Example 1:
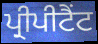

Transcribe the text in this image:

ਪ੍ਰੀਪੀਟੈਂਟ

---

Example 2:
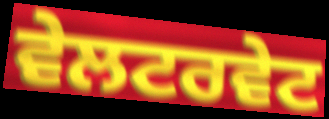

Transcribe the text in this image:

ਵੇਲਟਰਵੇਟ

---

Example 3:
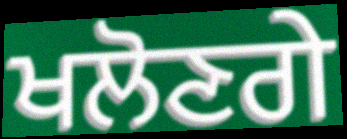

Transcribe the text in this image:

ਖਲੋਣਗੇ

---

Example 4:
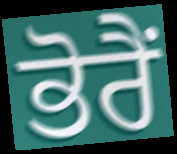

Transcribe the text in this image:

ਭੋਰੈਂ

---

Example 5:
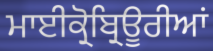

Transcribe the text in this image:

ਮਾਈਕ੍ਰੋਬ੍ਰਿਊਰੀਆਂ